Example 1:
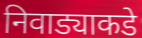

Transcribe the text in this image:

निवाड्याकडे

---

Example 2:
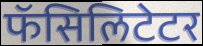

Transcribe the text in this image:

फॅसिलिटेटर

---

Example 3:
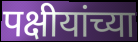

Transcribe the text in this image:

पक्षीयांच्या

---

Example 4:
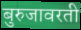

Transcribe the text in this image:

बुरुजावरती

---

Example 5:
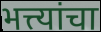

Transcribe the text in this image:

भत्त्यांचा